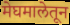
मेघमालेतून